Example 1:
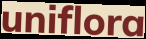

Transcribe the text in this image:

uniflora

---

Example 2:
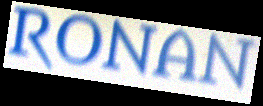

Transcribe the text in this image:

RONAN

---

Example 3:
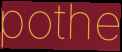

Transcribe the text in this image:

pothe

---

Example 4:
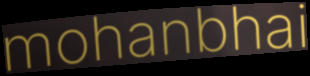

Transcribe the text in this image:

mohanbhai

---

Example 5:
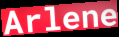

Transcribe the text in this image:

Arlene